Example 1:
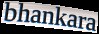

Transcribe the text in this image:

bhankara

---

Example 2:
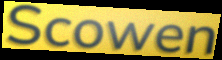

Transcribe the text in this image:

Scowen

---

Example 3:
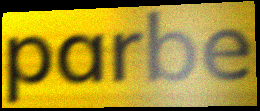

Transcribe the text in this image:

parbe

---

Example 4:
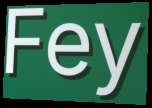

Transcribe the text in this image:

Fey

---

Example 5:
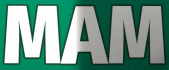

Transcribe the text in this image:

MAM